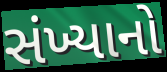
સંખ્યાનો